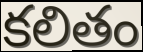
కలితం